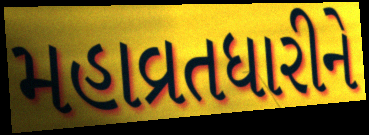
મહાવ્રતધારીને